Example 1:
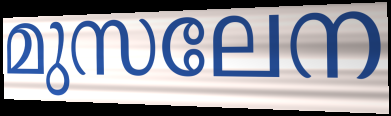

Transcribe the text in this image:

മുസലേന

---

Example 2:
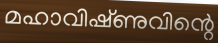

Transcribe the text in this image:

മഹാവിഷ്‌ണുവിന്റെ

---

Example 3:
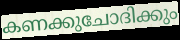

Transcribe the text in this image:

കണക്കുചോദിക്കും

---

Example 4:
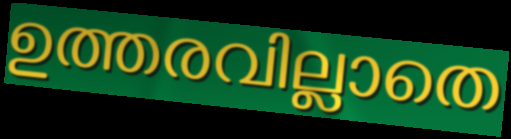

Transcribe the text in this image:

ഉത്തരവില്ലാതെ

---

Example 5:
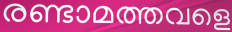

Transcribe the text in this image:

രണ്ടാമത്തവളെ